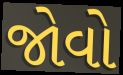
જોવો